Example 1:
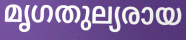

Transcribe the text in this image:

മൃഗതുല്യരായ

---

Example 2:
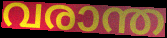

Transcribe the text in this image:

വരാന്ത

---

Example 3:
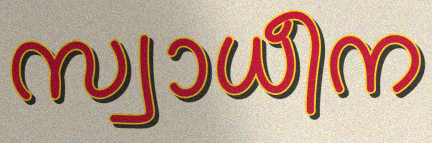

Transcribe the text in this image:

സ്വാധീന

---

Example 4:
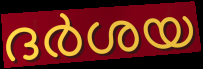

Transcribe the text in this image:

ദർശയ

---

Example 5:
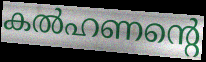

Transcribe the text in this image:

കൽഹണന്റെ